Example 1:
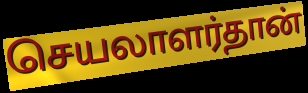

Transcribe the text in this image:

செயலாளர்தான்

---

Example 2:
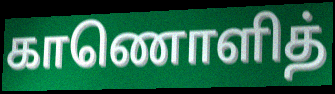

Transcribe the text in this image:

காணொளித்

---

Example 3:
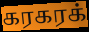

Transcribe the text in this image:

கரகரக்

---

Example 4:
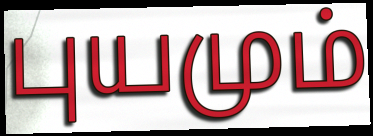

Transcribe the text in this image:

புயமும்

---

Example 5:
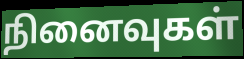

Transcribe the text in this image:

நினைவுகள்